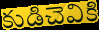
కుడిచెవికి